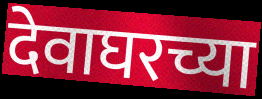
देवाघरच्या